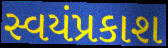
સ્વયંપ્રકાશ